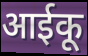
आईकू